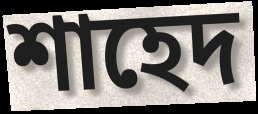
শাহেদ